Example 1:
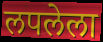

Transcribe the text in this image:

लपलेला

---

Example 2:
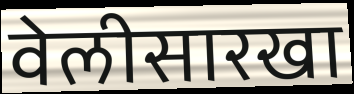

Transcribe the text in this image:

वेलीसारखा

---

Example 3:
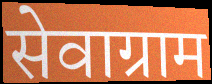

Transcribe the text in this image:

सेवाग्राम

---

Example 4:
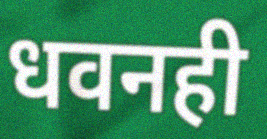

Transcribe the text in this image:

धवनही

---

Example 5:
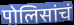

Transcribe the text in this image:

पोलिसांचं